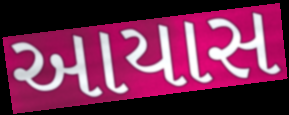
આયાસ